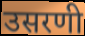
उसरणी